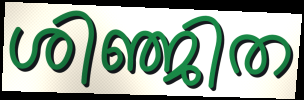
ശിഞ്ജിത